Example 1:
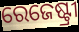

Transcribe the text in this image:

ରେଜେଷ୍ଟ୍ରୀ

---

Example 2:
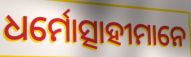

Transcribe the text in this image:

ଧର୍ମୋତ୍ସାହୀମାନେ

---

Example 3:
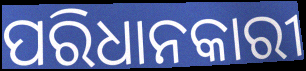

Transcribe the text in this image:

ପରିଧାନକାରୀ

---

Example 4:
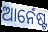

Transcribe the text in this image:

ଆର୍ନେଷ୍ଟ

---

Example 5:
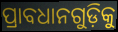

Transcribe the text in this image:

ପ୍ରାବଧାନଗୁଡ଼ିକୁ